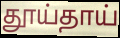
தூய்தாய்